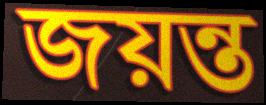
জয়ন্ত